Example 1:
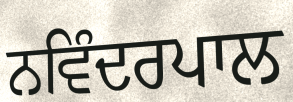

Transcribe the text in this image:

ਨਵਿੰਦਰਪਾਲ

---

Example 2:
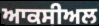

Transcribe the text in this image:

ਆਕਸੀਅਲ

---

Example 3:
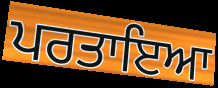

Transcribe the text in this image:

ਪਰਤਾਇਆ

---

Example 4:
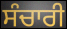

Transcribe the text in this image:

ਸੰਚਾਰੀ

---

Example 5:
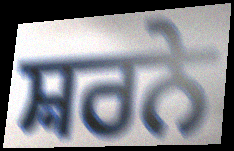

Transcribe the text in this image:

ਸ਼ਰਨੇ